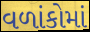
વળાંકોમાં